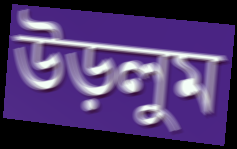
উড়লুম